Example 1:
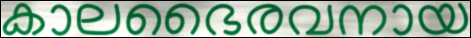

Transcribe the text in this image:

കാലഭൈരവനായ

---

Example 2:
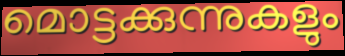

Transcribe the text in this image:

മൊട്ടക്കുന്നുകളും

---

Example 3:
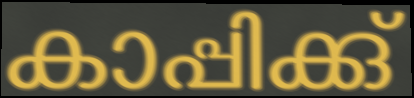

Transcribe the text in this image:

കാപ്പിക്കു്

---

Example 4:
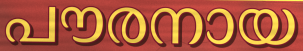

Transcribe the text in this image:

പൗരനായ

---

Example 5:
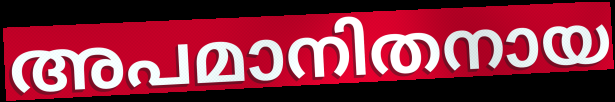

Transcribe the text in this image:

അപമാനിതനായ